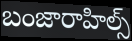
బంజారాహిల్స్